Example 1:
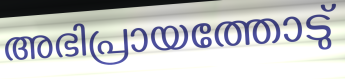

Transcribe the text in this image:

അഭിപ്രായത്തോടു്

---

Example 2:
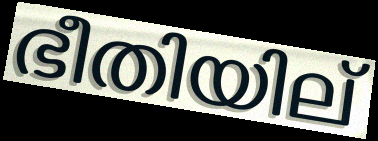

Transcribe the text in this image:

ഭീതിയില്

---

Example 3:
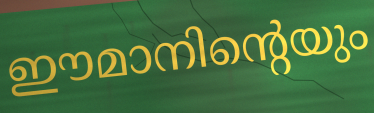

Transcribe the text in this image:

ഈമാനിന്റെയും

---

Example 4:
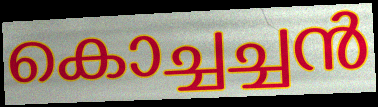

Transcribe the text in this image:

കൊച്ചച്ചൻ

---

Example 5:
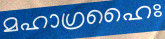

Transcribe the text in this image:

മഹാഗ്രഹൈഃ